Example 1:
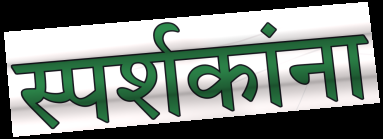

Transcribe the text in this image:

स्पर्शकांना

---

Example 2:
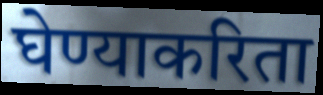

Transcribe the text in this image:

घेण्याकरिता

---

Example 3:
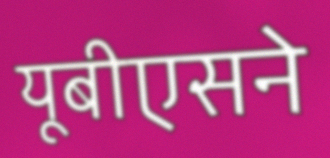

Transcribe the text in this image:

यूबीएसने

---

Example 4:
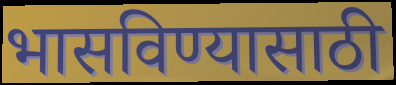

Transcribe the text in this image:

भासविण्यासाठी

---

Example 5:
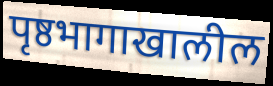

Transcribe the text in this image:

पृष्ठभागाखालील